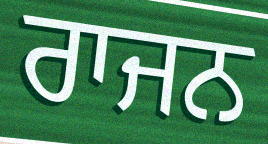
ਰਾਜਨ